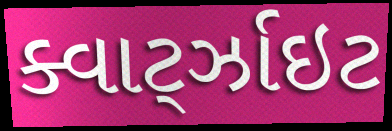
ક્વાર્ટ્ઝાઇટ